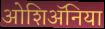
ओशिॲनिया